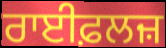
ਰਾਈਫ਼ਲਜ਼